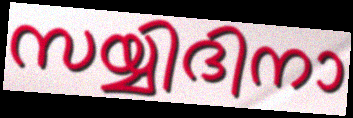
സയ്യിദിനാ